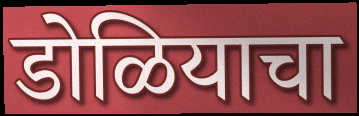
डोळियाचा